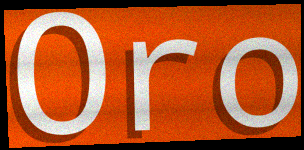
Oro